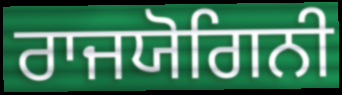
ਰਾਜਯੋਗਿਨੀ